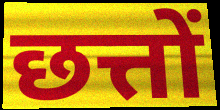
छत्तों